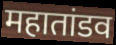
महातांडव